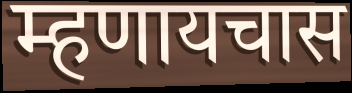
म्हणायचास